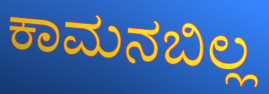
ಕಾಮನಬಿಲ್ಲ